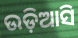
ଉଡ଼ିଆସି